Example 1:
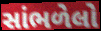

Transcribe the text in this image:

સાંભળેલો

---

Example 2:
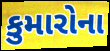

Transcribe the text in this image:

કુમારોના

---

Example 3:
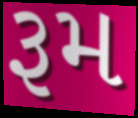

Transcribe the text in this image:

રૂમ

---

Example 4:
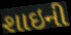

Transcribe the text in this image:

શાઇની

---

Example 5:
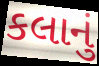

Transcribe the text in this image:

કલાનું